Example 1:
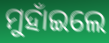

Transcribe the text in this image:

ମୁହାଁଇଲେ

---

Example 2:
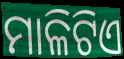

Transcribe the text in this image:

ମାଳିଟିଏ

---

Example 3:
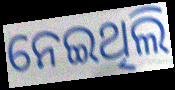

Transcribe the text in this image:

ନେଇଥିଲି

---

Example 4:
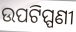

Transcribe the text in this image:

ଉପଟିପ୍ପଣୀ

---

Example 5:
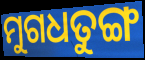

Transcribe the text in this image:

ମୁଗଧତୁଙ୍ଗ